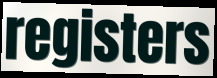
registers